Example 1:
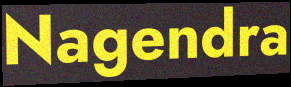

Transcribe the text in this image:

Nagendra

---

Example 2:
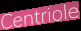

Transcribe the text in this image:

Centriole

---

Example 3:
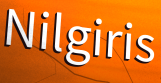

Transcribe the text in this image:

Nilgiris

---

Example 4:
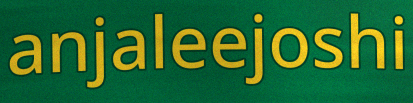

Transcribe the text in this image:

anjaleejoshi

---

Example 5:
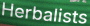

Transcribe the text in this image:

Herbalists